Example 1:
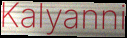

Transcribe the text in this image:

Kalyanni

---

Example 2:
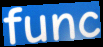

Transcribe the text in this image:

func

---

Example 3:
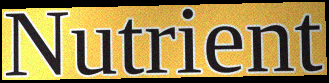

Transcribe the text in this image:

Nutrient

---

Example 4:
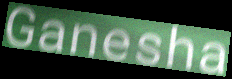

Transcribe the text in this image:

Ganesha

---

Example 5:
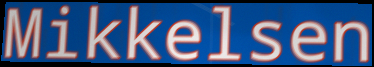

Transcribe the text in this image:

Mikkelsen